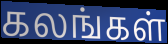
கலங்கள்